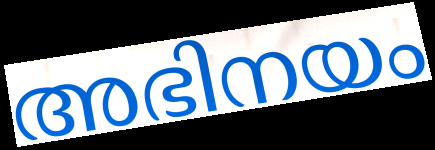
അഭിനയം